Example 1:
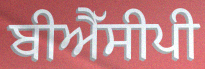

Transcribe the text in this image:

ਬੀਐੱਸੀਪੀ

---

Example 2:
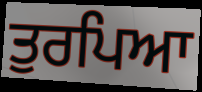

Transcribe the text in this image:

ਤੁਰਪਿਆ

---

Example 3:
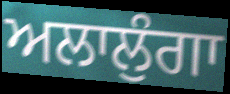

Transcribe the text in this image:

ਅਲਾਲੁੰਗਾ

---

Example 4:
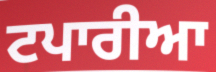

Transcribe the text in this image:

ਟਪਾਰੀਆ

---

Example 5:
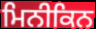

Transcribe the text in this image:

ਮਿਨੀਕਿਨ